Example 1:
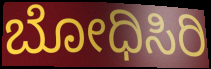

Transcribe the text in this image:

ಬೋಧಿಸಿರಿ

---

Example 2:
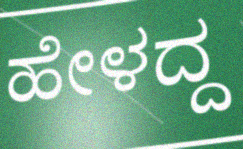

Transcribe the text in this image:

ಹೇಳದ್ದ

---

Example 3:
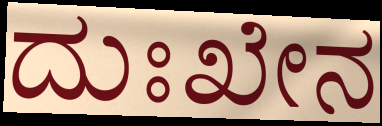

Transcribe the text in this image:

ದುಃಖೇನ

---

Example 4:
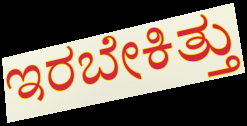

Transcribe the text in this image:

ಇರಬೇಕಿತ್ತು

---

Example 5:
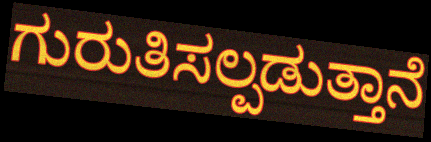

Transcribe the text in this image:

ಗುರುತಿಸಲ್ಪಡುತ್ತಾನೆ